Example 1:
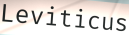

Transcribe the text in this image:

Leviticus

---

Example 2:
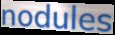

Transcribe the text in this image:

nodules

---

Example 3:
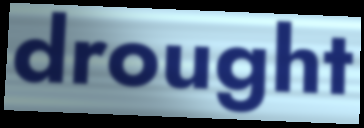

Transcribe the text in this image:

drought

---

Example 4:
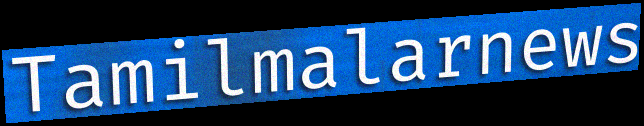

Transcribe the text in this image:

Tamilmalarnews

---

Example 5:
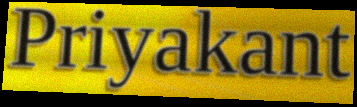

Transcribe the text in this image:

Priyakant